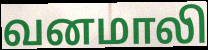
வனமாலி